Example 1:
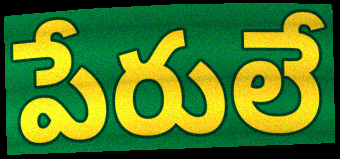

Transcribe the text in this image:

పేరులే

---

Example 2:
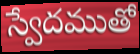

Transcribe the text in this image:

స్వేదముతో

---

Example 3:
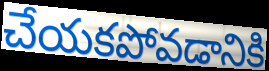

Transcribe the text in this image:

చేయకపోవడానికి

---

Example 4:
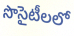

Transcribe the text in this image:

సొసైటీలలో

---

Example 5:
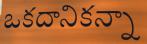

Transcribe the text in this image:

ఒకదానికన్నా